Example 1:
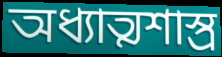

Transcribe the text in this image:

অধ্যাত্মশাস্ত্র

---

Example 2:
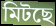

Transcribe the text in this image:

মিটছে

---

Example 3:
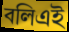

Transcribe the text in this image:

বলিএই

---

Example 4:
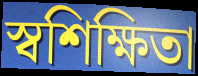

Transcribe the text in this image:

স্বশিক্ষিতা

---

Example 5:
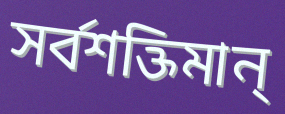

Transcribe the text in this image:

সর্বশক্তিমান্